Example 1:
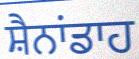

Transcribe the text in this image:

ਸ਼ੈਨਾਂਡਾਹ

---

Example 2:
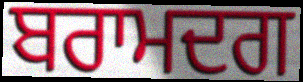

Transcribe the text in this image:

ਬਰਾਮਦਗ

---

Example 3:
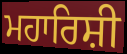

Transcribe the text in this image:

ਮਹਾਰਿਸ਼ੀ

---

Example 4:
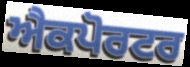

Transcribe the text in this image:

ਐਕਪੋਰਟਰ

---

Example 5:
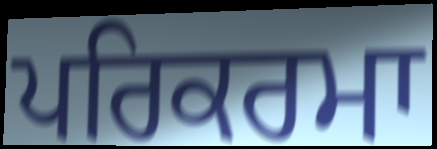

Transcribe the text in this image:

ਪਰਿਕਰਮਾ